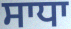
ਸਾਧਾ